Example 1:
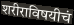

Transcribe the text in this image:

शरीराविषयीचं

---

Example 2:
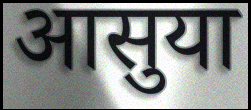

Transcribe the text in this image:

आसुया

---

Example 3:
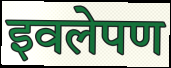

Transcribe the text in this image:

इवलेपण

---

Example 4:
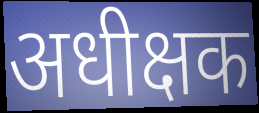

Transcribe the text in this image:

अधीक्षक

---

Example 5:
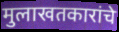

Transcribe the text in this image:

मुलाखतकारांचे